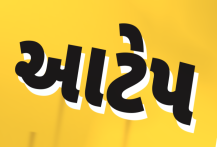
આટેપ